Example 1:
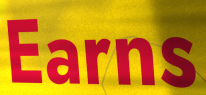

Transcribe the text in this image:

Earns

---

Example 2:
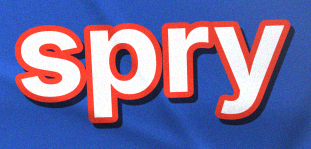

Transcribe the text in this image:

spry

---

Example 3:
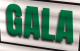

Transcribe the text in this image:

GALA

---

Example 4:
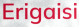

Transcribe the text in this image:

Erigaisi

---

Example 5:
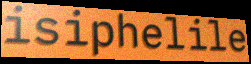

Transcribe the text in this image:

isiphelile